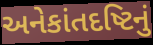
અનેકાંતદષ્ટિનું